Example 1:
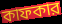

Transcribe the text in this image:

কাফকার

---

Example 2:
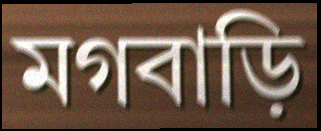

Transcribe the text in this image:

মগবাড়ি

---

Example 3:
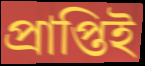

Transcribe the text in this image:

প্রাপ্তিই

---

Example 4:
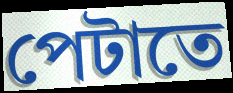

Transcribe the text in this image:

পেটাতে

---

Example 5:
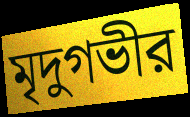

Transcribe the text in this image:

মৃদুগভীর